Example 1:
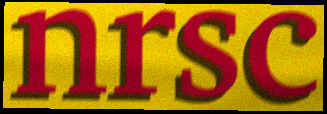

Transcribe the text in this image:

nrsc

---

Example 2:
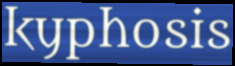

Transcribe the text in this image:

kyphosis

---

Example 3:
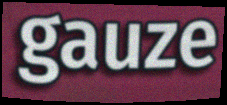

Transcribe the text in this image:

gauze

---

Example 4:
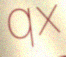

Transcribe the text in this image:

qx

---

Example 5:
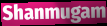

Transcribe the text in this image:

Shanmugam